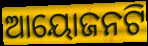
ଆୟୋଜନଟି